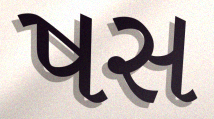
ષસ